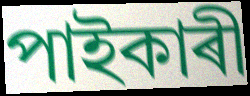
পাইকাৰী